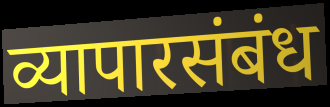
व्यापारसंबंध